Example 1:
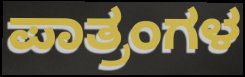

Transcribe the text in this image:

ಪಾತ್ರಂಗಳ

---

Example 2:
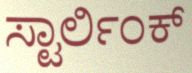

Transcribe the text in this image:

ಸ್ಟಾರ್ಲಿಂಕ್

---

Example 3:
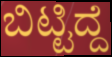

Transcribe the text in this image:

ಬಿಟ್ಟಿದ್ದೆ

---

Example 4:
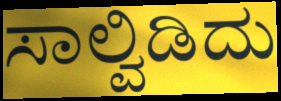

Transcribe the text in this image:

ಸಾಲ್ವಿಡಿದು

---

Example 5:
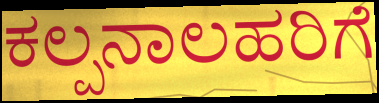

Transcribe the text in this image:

ಕಲ್ಪನಾಲಹರಿಗೆ